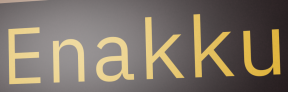
Enakku